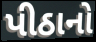
પીઠાનો